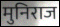
मुनिराज